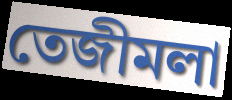
তেজীমলা